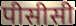
पीसीसी